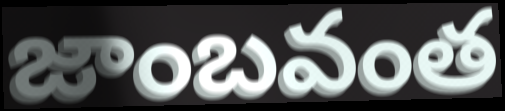
జాంబవంత